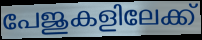
പേജുകളിലേക്ക്